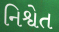
નિશ્વેત